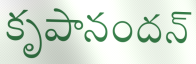
కృపానందన్